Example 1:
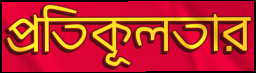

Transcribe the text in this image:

প্রতিকূলতার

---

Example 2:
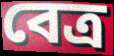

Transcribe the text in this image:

বেত্র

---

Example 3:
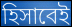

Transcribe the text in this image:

হিসাবেই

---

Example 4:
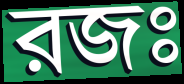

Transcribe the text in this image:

রজঃ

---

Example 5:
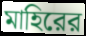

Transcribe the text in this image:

মাহিরের